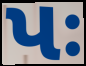
પઃ